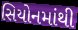
સિયોનમાંથી